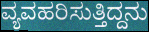
ವ್ಯವಹರಿಸುತ್ತಿದ್ದನು